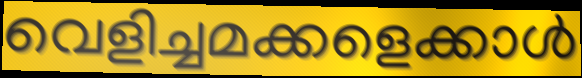
വെളിച്ചമക്കളെക്കാൾ